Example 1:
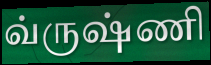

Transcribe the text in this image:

வ்ருஷ்ணி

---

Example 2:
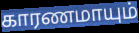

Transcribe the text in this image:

காரணமாயும்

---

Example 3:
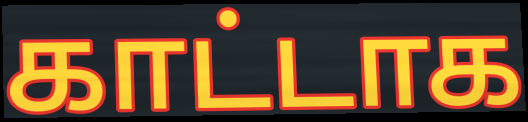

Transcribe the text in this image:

காட்டாக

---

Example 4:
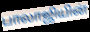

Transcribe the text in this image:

பாலாஜியின்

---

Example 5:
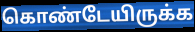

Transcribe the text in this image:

கொண்டேயிருக்க